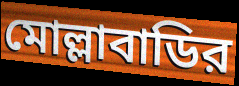
মোল্লাবাডির